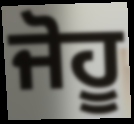
ਜੋਹੂ